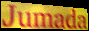
Jumada